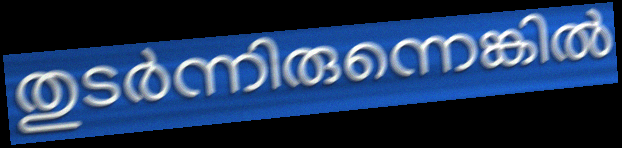
തുടർന്നിരുന്നെങ്കിൽ